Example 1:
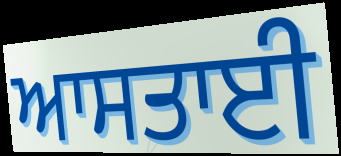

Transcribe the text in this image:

ਆਸਤਾਈ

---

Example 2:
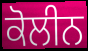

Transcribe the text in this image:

ਕੋਲੀਨ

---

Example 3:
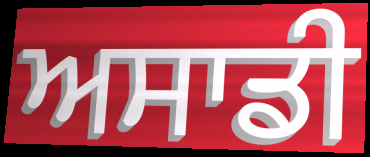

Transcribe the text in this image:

ਅਸਾਡੀ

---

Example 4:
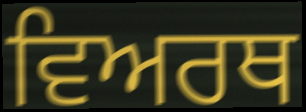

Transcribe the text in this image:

ਵਿਅਰਥ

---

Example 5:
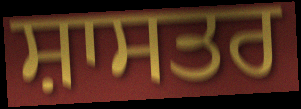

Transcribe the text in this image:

ਸ਼ਾਸਤਰ